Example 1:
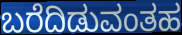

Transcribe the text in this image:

ಬರೆದಿಡುವಂತಹ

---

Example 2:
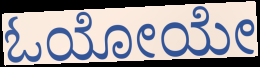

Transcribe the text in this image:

ಓಯೋಯೇ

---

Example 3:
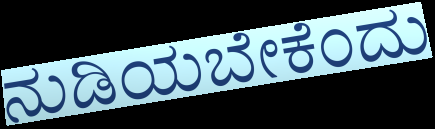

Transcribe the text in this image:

ನುಡಿಯಬೇಕೆಂದು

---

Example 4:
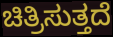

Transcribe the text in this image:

ಚಿತ್ರಿಸುತ್ತದೆ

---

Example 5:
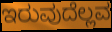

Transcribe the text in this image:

ಇರುವುದೆಲ್ಲವ